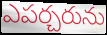
ఎపర్చరును